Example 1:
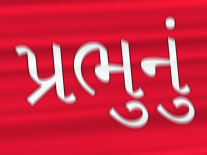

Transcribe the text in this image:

પ્રભુનું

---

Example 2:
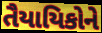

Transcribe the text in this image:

તૈયાયિકોને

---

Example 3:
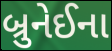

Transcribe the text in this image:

બ્રુનેઈના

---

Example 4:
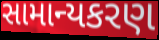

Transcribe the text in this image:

સામાન્યકરણ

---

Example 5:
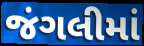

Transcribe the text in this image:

જંગલીમાં